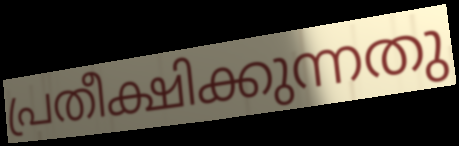
പ്രതീക്ഷിക്കുന്നതു